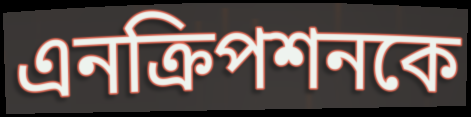
এনক্রিপশনকে